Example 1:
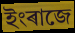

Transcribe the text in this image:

ইংৰাজে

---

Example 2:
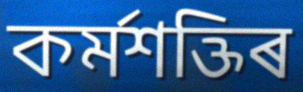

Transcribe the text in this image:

কৰ্মশক্তিৰ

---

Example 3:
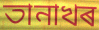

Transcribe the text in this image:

তানাখৰ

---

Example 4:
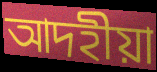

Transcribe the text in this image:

আদহীয়া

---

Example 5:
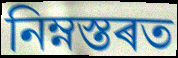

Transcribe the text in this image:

নিম্নস্তৰত